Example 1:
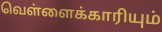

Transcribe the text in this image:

வெள்ளைக்காரியும்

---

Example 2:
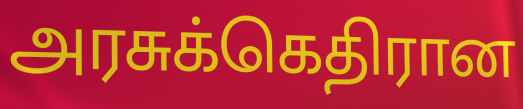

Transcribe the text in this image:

அரசுக்கெதிரான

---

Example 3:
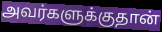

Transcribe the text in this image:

அவர்களுக்குதான்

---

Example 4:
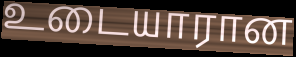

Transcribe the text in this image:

உடையாரான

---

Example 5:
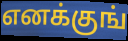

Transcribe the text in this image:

எனக்குங்